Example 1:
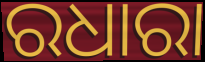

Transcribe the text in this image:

ରଧାରା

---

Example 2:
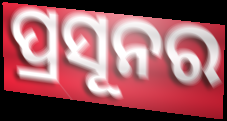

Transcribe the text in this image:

ପ୍ରସୂନର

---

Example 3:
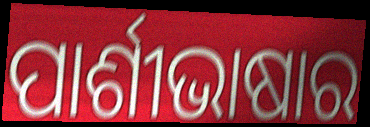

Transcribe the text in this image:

ପାର୍ଶୀଭାଷାର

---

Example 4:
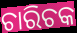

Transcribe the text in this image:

ଚାରିଚକ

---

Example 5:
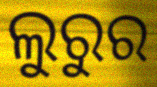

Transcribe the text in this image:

ଲୁରୁର